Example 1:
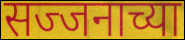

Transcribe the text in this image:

सज्जनाच्या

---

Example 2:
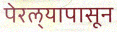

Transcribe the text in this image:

पेरल्यापासून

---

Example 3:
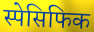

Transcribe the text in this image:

स्पेसिफिक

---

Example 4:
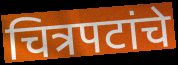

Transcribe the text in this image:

चित्रपटांचे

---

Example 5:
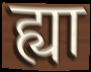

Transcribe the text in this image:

ह्या